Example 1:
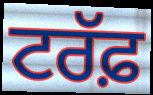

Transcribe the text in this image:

ਟਰੱਫ਼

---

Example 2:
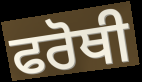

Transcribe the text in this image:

ਫਰੋਥੀ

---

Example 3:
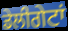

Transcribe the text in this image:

ਡੇਲੀਗੇਟਾਂ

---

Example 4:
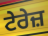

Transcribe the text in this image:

ਟੇਰੇਜ਼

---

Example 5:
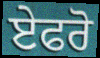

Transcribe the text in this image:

ਏਫਰੋ